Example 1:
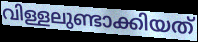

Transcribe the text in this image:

വിള്ളലുണ്ടാക്കിയത്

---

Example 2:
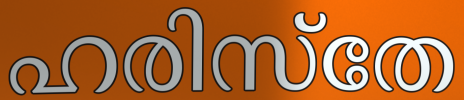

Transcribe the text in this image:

ഹരിസ്തേ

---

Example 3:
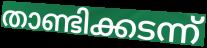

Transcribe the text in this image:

താണ്ടിക്കടന്ന്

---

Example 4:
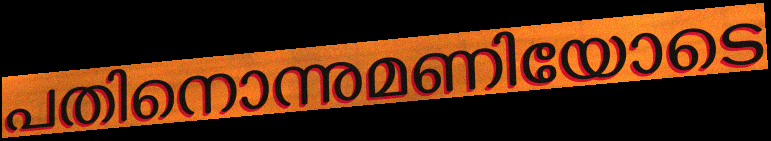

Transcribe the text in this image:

പതിനൊന്നുമണിയോടെ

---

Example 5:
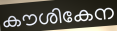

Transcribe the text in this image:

കൗശികേന